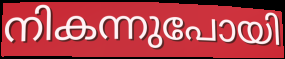
നികന്നുപോയി